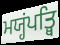
ਮਯ੍ਹਂਪਤ੍ਥਿ